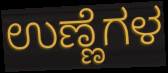
ಉಣ್ಣೆಗಳ